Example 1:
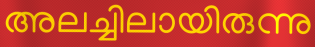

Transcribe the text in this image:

അലച്ചിലായിരുന്നു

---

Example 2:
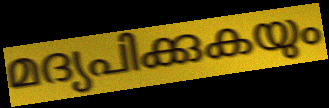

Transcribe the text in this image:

മദ്യപിക്കുകയും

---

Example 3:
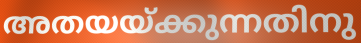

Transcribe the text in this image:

അതയയ്ക്കുന്നതിനു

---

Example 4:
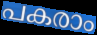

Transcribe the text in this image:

പകരാം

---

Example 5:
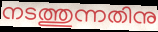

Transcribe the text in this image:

നടത്തുന്നതിനു